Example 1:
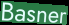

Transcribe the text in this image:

Basner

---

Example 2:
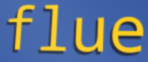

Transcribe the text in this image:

flue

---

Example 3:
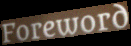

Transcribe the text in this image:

Foreword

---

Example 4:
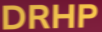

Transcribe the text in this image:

DRHP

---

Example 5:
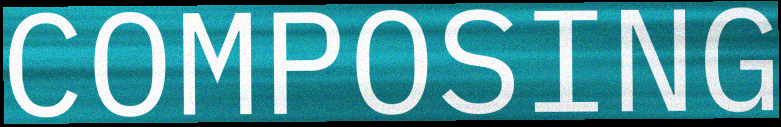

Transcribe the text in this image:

COMPOSING